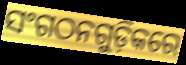
ସଂଗଠନଗୁଡ଼ିକରେ